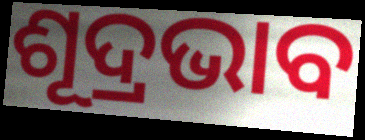
ଶୂଦ୍ରଭାବ